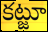
కట్జూ